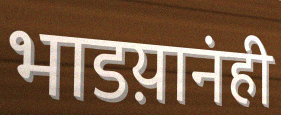
भाडय़ानंही